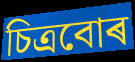
চিত্ৰবোৰ